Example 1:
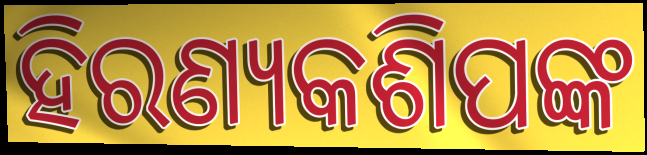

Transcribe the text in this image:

ହିରଣ୍ୟକଶିପଙ୍କ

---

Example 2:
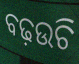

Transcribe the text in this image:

ବଢ଼ଉଚି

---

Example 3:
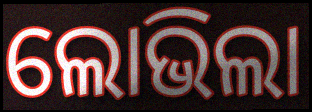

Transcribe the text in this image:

ଲୋଭିଲା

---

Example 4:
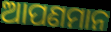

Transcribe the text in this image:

ଆପଣମାନ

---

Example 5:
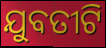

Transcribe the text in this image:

ଯୁବତୀଟି